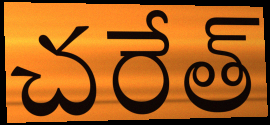
చరేత్